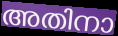
അതിനാ